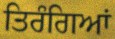
ਤਿਰੰਗਿਆਂ